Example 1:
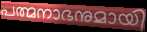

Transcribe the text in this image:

പത്മനാഭനുമായി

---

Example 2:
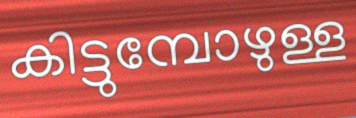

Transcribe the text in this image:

കിട്ടുമ്പോഴുള്ള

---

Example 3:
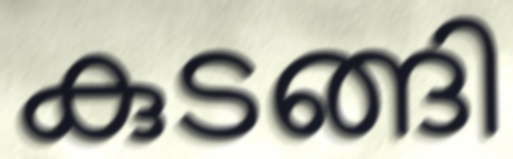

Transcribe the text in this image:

കുടങ്ങി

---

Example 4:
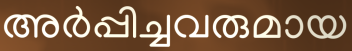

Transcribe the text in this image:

അർപ്പിച്ചവരുമായ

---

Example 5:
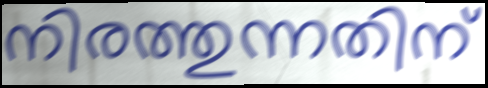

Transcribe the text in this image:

നിരത്തുന്നതിന്